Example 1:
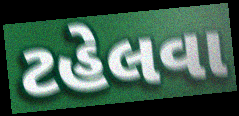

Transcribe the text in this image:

ટહેલવા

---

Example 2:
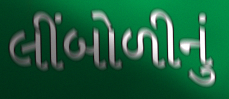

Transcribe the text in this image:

લીંબોળીનું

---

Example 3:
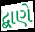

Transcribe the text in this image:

દ્બાણે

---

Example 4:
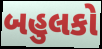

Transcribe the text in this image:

બહુલકો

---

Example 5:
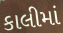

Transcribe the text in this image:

કાલીમાં